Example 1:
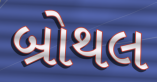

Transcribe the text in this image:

બ્રોથલ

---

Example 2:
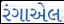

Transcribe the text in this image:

રંગાએલ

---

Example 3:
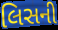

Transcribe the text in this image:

લિસની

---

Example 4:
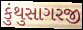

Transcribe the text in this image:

કુંથુસાગરજી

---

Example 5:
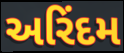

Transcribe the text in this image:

અરિંદમ